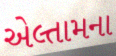
એલ્તામના